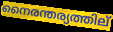
നൈരന്തര്യത്തില്